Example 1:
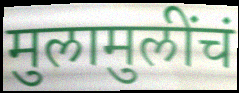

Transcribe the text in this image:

मुलामुलींचं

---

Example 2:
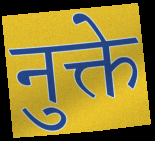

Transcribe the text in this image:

नुक्ते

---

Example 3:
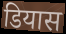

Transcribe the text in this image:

डियास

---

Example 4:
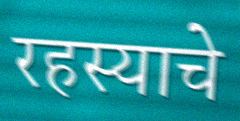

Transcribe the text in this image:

रहस्याचे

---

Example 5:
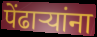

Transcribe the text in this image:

पेंढाऱ्यांना